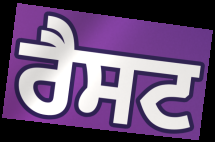
ਰੈਸਟ